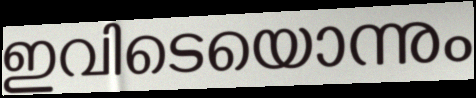
ഇവിടെയൊന്നും